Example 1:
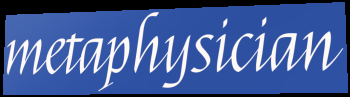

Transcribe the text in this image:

metaphysician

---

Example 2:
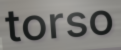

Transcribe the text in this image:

torso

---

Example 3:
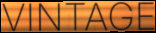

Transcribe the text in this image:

VINTAGE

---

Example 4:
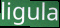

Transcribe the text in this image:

ligula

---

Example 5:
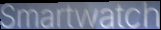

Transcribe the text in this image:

Smartwatch